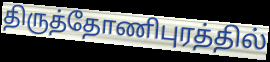
திருத்தோணிபுரத்தில்